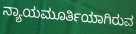
ನ್ಯಾಯಮೂರ್ತಿಯಾಗಿರುವ